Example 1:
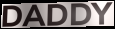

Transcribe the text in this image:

DADDY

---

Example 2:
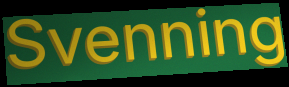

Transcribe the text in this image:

Svenning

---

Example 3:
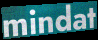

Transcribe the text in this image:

mindat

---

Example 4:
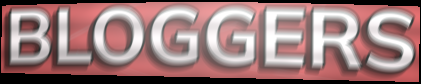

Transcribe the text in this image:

BLOGGERS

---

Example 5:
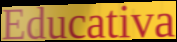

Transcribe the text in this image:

Educativa